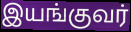
இயங்குவர்